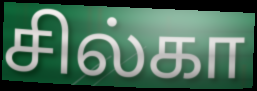
சில்கா